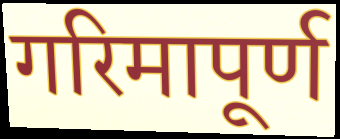
गरिमापूर्ण